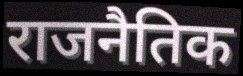
राजनैतिक